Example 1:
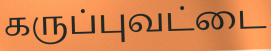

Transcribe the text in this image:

கருப்புவட்டை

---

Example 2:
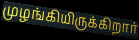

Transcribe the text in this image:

முழங்கியிருக்கிறார்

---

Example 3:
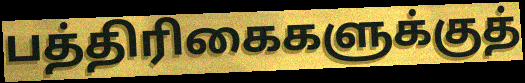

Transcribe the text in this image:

பத்திரிகைகளுக்குத்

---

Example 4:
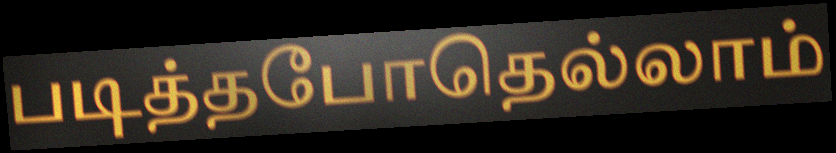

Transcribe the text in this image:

படித்தபோதெல்லாம்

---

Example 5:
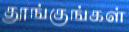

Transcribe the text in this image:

தூங்குங்கள்